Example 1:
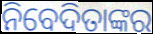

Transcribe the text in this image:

ନିବେଦିତାଙ୍କର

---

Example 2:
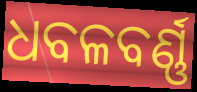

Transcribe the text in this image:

ଧବଳବର୍ଣ୍ଣ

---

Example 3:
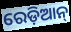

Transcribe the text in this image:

ରେଡ଼ିଆନ୍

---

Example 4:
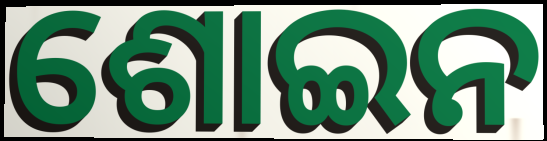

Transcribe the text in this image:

ଶୋଇନ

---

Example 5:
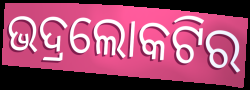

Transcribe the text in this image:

ଭଦ୍ରଲୋକଟିର